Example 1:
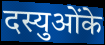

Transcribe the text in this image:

दस्युओंके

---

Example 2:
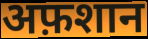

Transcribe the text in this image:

अफ़शान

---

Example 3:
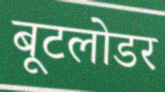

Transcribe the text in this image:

बूटलोडर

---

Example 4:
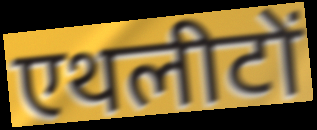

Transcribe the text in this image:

एथलीटों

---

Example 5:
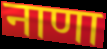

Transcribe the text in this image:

नाणा